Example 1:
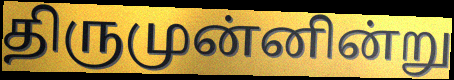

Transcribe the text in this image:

திருமுன்னின்று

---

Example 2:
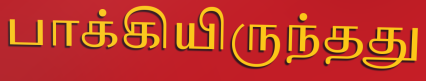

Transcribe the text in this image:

பாக்கியிருந்தது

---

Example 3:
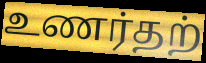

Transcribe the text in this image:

உணர்தற்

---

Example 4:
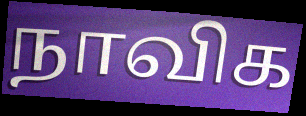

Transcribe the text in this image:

நாவிக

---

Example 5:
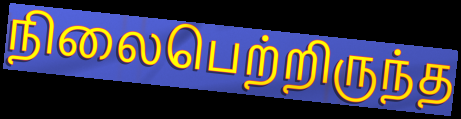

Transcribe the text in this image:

நிலைபெற்றிருந்த